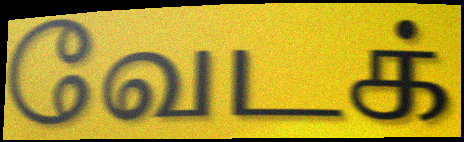
வேடக்